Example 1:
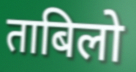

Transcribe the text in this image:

ताबिलो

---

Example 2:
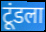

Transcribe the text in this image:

टूंडला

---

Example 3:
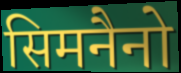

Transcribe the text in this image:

सिमनैनो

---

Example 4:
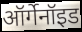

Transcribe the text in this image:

ऑर्गेनॉइड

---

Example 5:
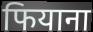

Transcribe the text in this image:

फियाना